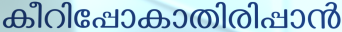
കീറിപ്പോകാതിരിപ്പാൻ